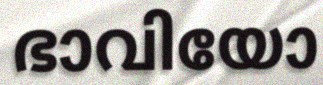
ഭാവിയോ